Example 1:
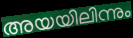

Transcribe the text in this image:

അയയിലിന്നും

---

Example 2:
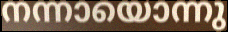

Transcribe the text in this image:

നന്നായൊന്നു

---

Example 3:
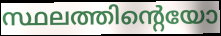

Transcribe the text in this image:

സ്ഥലത്തിന്റെയോ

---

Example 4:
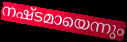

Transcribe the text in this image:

നഷ്ടമായെന്നും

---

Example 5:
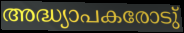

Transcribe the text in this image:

അദ്ധ്യാപകരോടു്